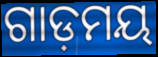
ଗାଡ଼ମୟ